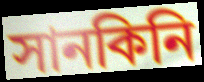
সানকিনি